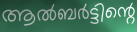
ആൽബർട്ടിന്റെ